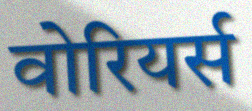
वोरियर्स